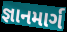
જ્ઞાનમાર્ગ